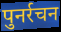
पुनर्रचन